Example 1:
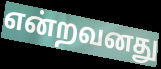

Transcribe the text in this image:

என்றவனது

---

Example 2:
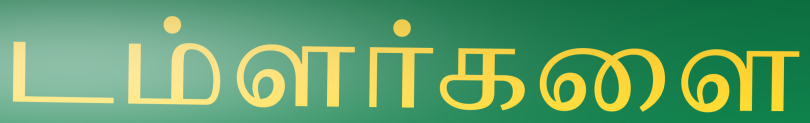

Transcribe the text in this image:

டம்ளர்களை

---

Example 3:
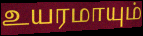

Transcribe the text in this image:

உயரமாயும்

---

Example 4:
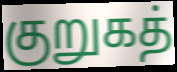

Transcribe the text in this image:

குறுகத்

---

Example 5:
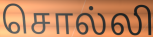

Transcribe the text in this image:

சொல்லி